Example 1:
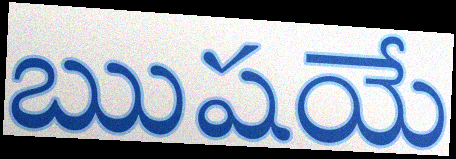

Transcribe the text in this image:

ఋషయే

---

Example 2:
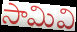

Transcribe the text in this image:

సామివి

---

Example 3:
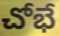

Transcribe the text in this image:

చోభే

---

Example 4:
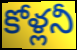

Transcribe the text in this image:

కోళ్లనీ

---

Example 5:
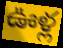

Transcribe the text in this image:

ఊళ్ల